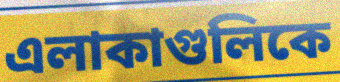
এলাকাগুলিকে